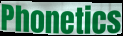
Phonetics